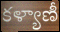
కళ్యాణీ